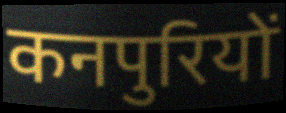
कनपुरियों